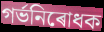
গৰ্ভনিৰোধক